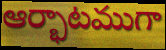
ఆర్భాటముగా